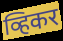
व्हिकर